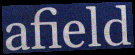
afield